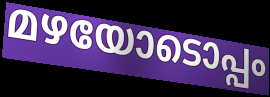
മഴയോടൊപ്പം